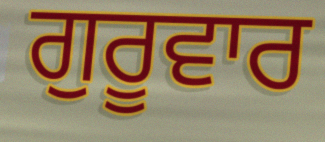
ਗੁਰੂਵਾਰ